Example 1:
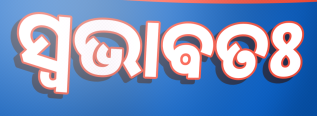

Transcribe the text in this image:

ସ୍ଵଭାଵତଃ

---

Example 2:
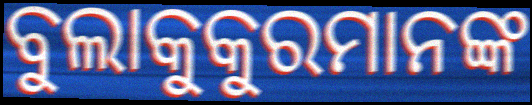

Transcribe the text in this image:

ବୁଲାକୁକୁରମାନଙ୍କ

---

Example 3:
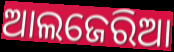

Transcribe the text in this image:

ଆଲଜେରିଆ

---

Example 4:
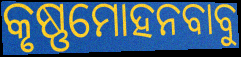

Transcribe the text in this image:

କୃଷ୍ଣମୋହନବାବୁ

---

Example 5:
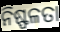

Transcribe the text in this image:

ନିଷ୍ଫଳତା